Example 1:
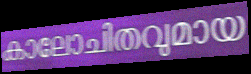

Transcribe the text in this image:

കാലോചിതവുമായ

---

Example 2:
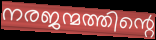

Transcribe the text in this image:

നരജന്മത്തിന്റെ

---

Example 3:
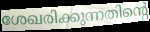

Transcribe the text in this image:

ശേഖരിക്കുന്നതിന്റെ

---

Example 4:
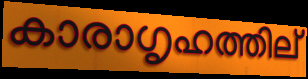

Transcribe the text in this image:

കാരാഗൃഹത്തില്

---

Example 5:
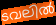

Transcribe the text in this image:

ടവലിൽ